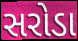
સરોડા